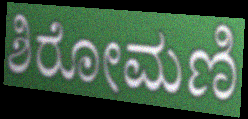
ಶಿರೋಮಣಿ